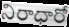
నిరాధారో